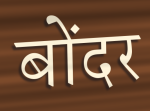
बोंदर